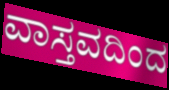
ವಾಸ್ತವದಿಂದ